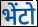
भेंटो